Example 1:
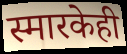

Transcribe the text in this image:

स्मारकेही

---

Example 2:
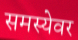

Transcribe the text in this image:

समस्येवर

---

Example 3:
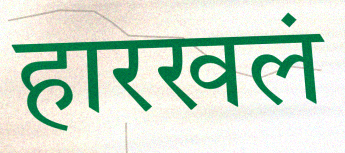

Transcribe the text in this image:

हारखलं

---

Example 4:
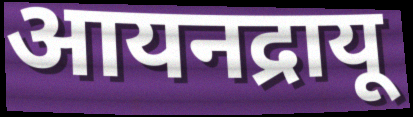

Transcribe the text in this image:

आयनद्रायू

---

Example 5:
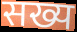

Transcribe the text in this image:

सख्य